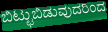
ಬಿಟ್ಟುಬಿಡುವುದರಿಂದ